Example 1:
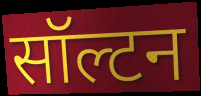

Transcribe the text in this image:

सॉल्टन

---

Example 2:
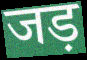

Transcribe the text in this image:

जड़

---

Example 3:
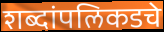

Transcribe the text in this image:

शब्दांपलिकडचे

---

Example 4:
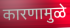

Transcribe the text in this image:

कारणामुळे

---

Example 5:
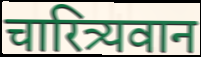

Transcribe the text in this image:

चारित्र्यवान